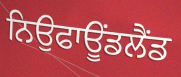
ਨਿਉਫਾਊਂਡਲੈਂਡ